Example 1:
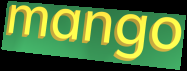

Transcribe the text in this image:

mango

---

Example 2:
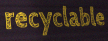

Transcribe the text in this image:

recyclable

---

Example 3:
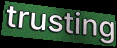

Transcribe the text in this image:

trusting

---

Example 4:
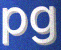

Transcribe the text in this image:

pg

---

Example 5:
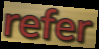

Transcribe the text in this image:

refer